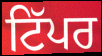
ਟਿੱਪਰ